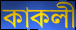
কাকলী